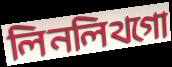
লিনলিথগো